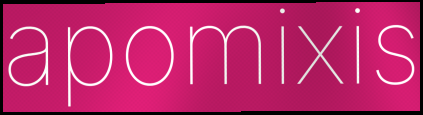
apomixis